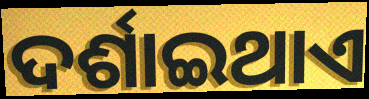
ଦର୍ଶାଇଥାଏ